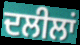
ਦਲੀਲਾਂ